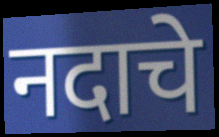
नदाचे